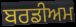
ਬਰਡੀਅਮ